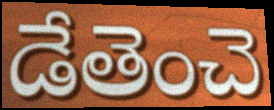
డేతెంచె